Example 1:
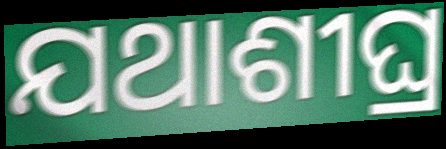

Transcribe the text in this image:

ଯଥାଶୀଘ୍ର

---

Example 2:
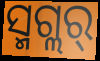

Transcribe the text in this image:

ସ୍ମଗ୍ଲର୍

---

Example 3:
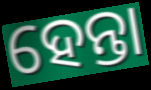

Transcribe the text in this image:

ହେନ୍ତା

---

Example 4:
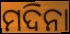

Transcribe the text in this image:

ମଦିନା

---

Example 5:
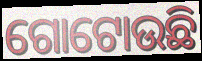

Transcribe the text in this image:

ଗୋଟୋଉଛି